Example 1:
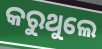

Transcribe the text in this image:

କରୁଥୁଲେ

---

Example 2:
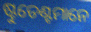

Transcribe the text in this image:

ଷ୍ଟୁଡେଣ୍ଟମାନେ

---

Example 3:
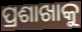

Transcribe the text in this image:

ପ୍ରଶାଖାକୁ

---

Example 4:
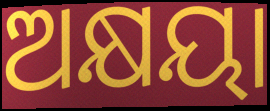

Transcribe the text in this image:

ଅକ୍ଷୟା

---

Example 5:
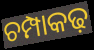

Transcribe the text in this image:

ଚମ୍ପାକଢ଼